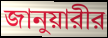
জানুয়ারীর